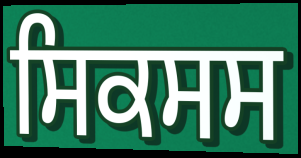
ਸਿਕਸਸ